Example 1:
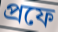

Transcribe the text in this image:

প্রফে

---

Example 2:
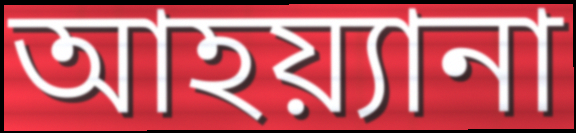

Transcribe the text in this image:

আহয়্যানা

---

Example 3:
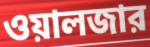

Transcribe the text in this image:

ওয়ালজার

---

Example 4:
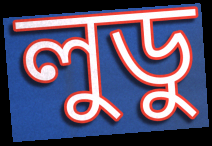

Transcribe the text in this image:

লুডু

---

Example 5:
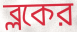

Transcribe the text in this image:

ব্লকের